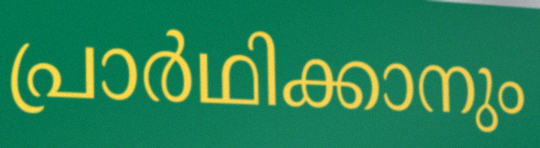
പ്രാർഥിക്കാനും